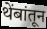
थेंबांतून